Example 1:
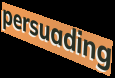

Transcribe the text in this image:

persuading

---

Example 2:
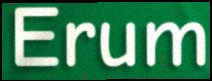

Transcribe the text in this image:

Erum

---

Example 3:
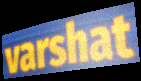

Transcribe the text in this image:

varshat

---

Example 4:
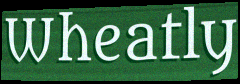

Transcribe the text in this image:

Wheatly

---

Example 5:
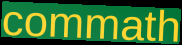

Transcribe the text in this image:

commath